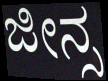
ಜೀನ್ಸ